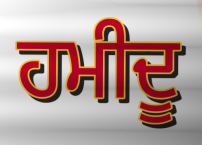
ਹਮੀਦੂ